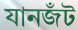
যানজঁট